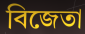
বিজেতা